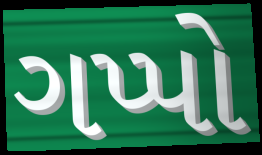
ગપ્પો